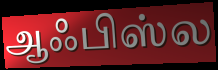
ஆஃபிஸ்ல